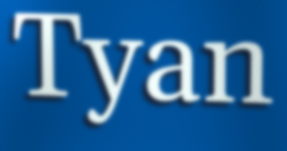
Tyan